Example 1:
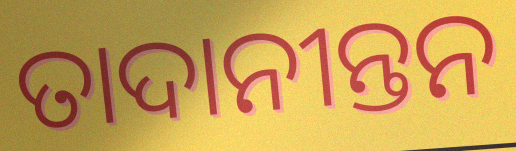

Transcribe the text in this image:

ତାଦାନୀନ୍ତନ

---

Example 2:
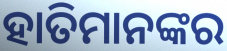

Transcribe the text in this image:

ହାତିମାନଙ୍କର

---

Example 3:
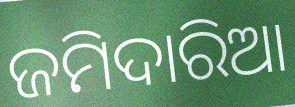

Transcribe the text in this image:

ଜମିଦାରିଆ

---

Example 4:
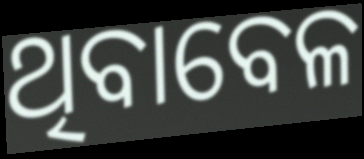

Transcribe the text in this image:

ଥିବାବେଳ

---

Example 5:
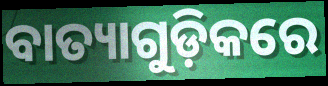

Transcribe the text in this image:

ବାତ୍ୟାଗୁଡ଼ିକରେ